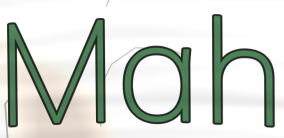
Mah